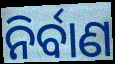
ନିର୍ବାଣ